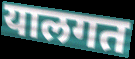
यालगत